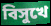
বিসুখে